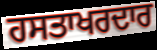
ਹਸਤਾਖਰਦਾਰ